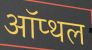
ऑप्थल